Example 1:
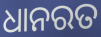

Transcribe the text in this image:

ଧାନରତ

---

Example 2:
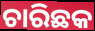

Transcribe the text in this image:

ଚାରିଛକ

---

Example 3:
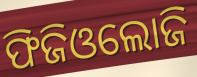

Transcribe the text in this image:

ଫିଜିଓଲୋଜି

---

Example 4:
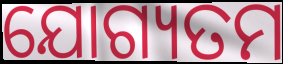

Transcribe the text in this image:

ଯୋଗ୍ୟତମ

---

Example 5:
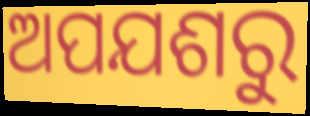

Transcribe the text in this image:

ଅପଯଶରୁ